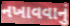
નખાવવાનું